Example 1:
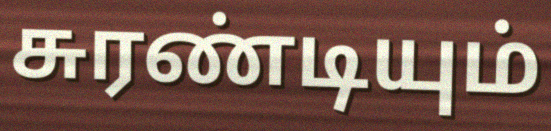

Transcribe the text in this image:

சுரண்டியும்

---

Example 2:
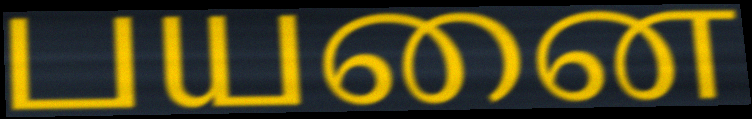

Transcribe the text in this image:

பயனை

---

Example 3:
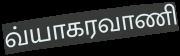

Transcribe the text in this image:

வ்யாகரவாணி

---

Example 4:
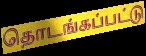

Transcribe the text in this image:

தொடங்கப்பட்டு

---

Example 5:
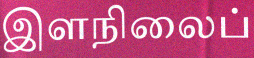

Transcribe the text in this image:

இளநிலைப்